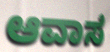
ಆವಾಸ